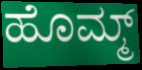
ಹೊಮ್ಮ್